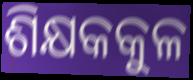
ଶିକ୍ଷକକୁଳ